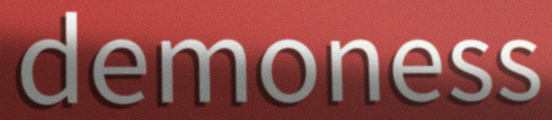
demoness